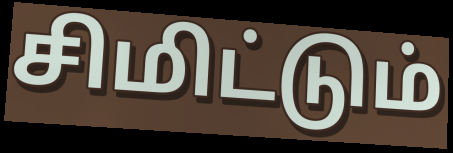
சிமிட்டும்